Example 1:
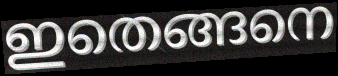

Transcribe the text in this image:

ഇതെങ്ങനെ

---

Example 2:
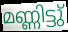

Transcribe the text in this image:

മണ്ണിട്ടു്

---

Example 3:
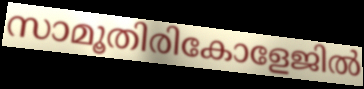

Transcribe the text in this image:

സാമൂതിരികോളേജിൽ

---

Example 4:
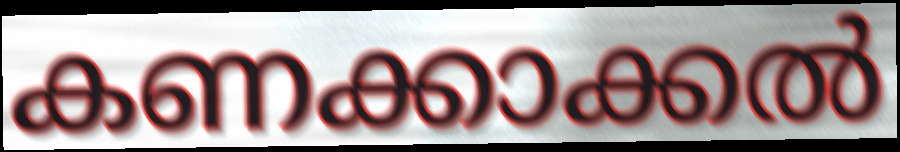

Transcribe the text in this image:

കണക്കാക്കൽ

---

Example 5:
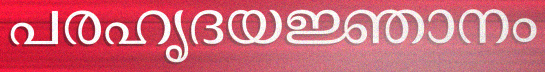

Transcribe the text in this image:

പരഹൃദയജ്ഞാനം